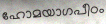
ഹോമയാഗപീഠം